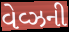
વેવ્ઝની